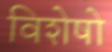
विशेषो